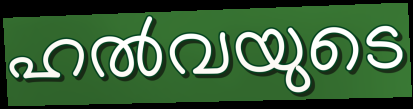
ഹൽവയുടെ